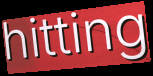
hitting